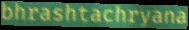
bhrashtachryana